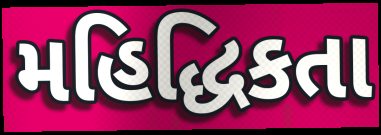
મહિદ્ધિકતા